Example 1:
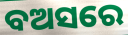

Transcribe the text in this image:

ବଅସରେ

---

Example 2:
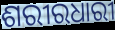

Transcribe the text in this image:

ଶରୀରଧାରୀ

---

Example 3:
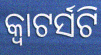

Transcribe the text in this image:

କ୍ୱାଟର୍ସଟି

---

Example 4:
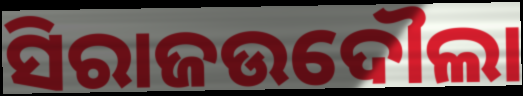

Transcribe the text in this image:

ସିରାଜଉଦୌଲା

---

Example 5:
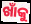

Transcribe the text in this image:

ଖାଁକୁ